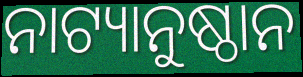
ନାଟ୍ୟାନୁଷ୍ଠାନ